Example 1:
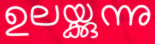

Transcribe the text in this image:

ഉലയ്ക്കുന്നു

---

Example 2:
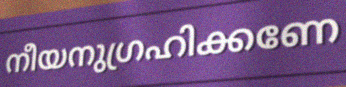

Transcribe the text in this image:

നീയനുഗ്രഹിക്കണേ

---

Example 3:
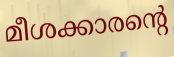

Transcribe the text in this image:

മീശക്കാരന്റെ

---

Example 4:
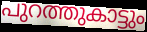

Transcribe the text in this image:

പുറത്തുകാട്ടും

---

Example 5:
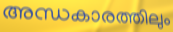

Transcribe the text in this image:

അന്ധകാരത്തിലും